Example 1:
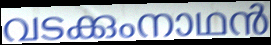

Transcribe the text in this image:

വടക്കുംനാഥൻ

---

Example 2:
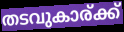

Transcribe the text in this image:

തടവുകാര്ക്ക്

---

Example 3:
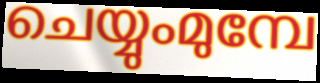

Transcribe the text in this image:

ചെയ്യുംമുമ്പേ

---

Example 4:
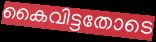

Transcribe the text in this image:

കൈവിട്ടതോടെ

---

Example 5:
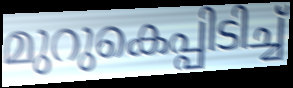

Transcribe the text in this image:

മുറുകെപ്പിടിച്ച്